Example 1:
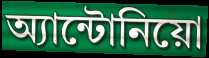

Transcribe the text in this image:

অ্যান্টোনিয়ো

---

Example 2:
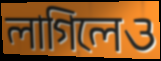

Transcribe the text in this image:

লাগিলেও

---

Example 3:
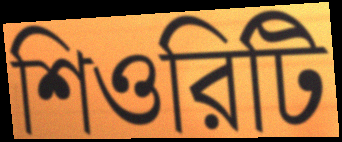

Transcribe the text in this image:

শিওরিটি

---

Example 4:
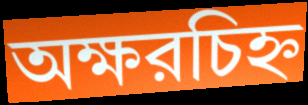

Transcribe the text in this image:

অক্ষরচিহ্ন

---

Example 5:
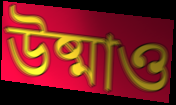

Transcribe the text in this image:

উষ্মাও